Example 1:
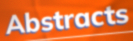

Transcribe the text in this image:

Abstracts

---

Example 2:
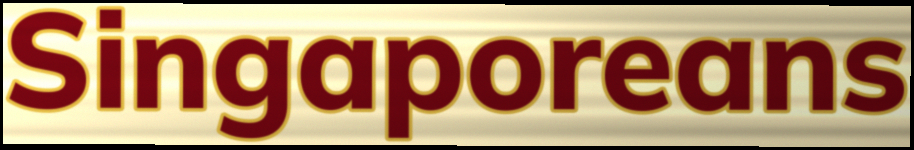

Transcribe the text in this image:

Singaporeans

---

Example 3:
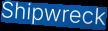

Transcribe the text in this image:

Shipwreck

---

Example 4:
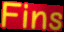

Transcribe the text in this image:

Fins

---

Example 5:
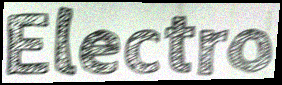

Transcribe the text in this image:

Electro